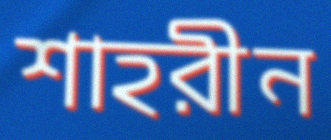
শাহরীন